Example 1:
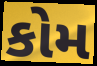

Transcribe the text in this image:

કોમ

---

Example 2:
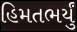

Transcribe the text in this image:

હિમતભર્યું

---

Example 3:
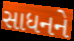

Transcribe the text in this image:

સાધનને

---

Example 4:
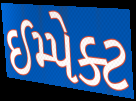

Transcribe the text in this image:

ઈમ્પેક્ટ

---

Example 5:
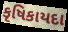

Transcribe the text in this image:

કૃષિકાયદા